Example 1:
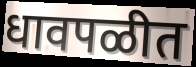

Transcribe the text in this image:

धावपळीत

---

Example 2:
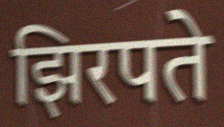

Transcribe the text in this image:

झिरपते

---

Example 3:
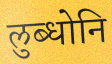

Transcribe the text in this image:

लुब्धोनि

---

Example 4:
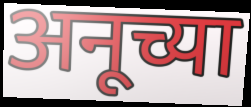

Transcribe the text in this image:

अनूच्या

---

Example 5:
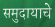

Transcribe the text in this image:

समुदायाचे